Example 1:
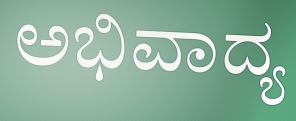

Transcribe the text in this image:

ಅಭಿವಾದ್ಯ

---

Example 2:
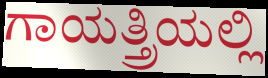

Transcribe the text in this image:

ಗಾಯತ್ತ್ರಿಯಲ್ಲಿ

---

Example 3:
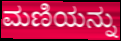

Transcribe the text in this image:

ಮಣಿಯನ್ನು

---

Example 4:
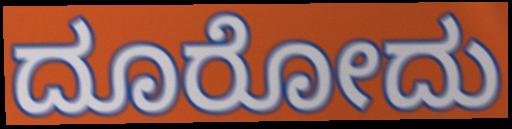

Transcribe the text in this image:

ದೂರೋದು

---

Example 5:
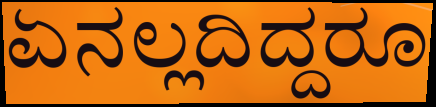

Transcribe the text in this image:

ಏನಲ್ಲದಿದ್ದರೂ